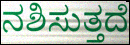
ನಶಿಸುತ್ತದೆ